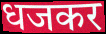
धजकर